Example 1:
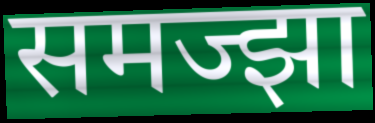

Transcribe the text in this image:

समज्झा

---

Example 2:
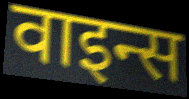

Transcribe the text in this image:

वाइन्स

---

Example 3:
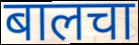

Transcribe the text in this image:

बालचा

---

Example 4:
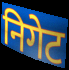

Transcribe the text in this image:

निगेट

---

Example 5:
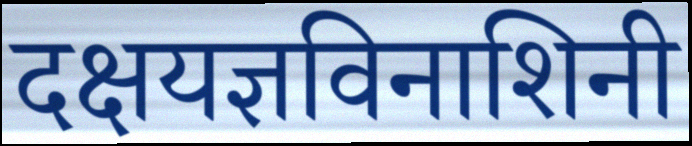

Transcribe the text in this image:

दक्षयज्ञविनाशिनी